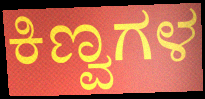
ಕಿಣ್ವಗಳ